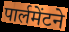
पार्लमेंटने